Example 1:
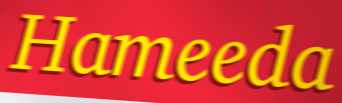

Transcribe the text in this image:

Hameeda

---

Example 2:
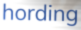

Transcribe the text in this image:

hording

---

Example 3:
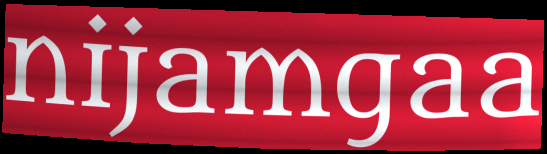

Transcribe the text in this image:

nijamgaa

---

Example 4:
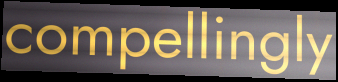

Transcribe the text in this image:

compellingly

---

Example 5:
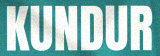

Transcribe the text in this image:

KUNDUR